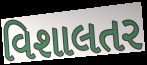
વિશાલતર